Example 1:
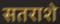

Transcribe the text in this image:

सतराशे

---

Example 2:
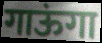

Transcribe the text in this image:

गाऊंगा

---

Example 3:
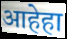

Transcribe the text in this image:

आहेहा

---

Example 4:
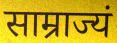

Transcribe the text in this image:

साम्राज्यं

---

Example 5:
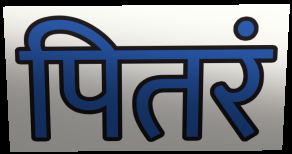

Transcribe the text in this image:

पितरं